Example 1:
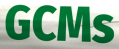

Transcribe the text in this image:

GCMs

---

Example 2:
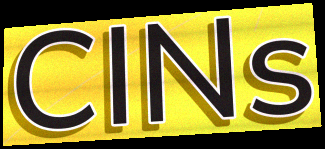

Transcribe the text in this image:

CINs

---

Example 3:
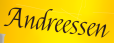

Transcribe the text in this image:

Andreessen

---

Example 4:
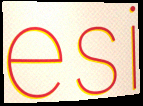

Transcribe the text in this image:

esi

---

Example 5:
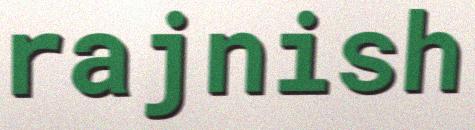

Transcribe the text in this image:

rajnish